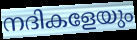
നദികളേയും